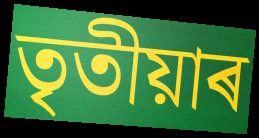
তৃতীয়াৰ